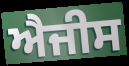
ਐਜੀਸ